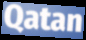
Qatan